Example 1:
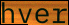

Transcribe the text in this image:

hver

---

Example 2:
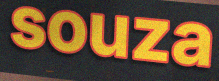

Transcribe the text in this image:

souza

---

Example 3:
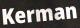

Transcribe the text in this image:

Kerman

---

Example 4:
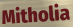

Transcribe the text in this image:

Mitholia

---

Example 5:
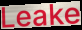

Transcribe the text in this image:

Leake